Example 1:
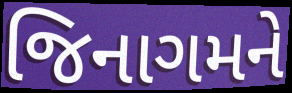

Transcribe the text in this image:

જિનાગમને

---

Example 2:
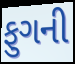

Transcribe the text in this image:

ફુગની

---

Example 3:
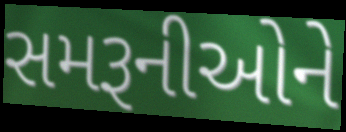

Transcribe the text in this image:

સમરૂનીઓને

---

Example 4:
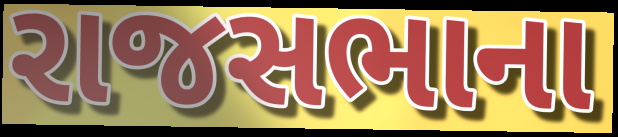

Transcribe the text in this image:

રાજસભાના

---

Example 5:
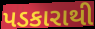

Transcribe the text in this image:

પડકારાથી